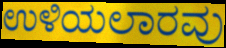
ಉಳಿಯಲಾರವು